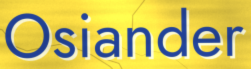
Osiander